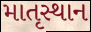
માતૃસ્થાન